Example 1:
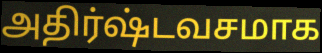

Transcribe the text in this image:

அதிர்ஷ்டவசமாக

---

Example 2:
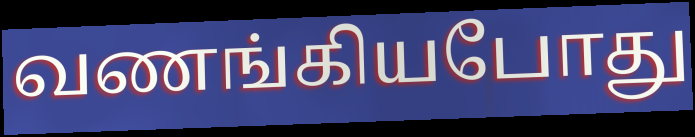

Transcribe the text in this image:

வணங்கியபோது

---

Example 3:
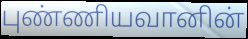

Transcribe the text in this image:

புண்ணியவானின்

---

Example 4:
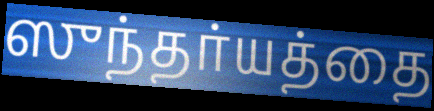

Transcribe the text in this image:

ஸுந்தர்யத்தை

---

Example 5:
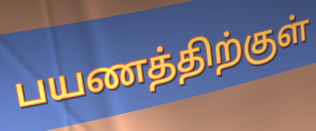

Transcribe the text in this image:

பயணத்திற்குள்